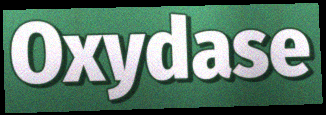
Oxydase